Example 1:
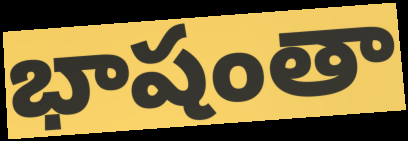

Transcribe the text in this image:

భాషంతా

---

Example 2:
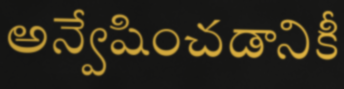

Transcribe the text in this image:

అన్వేషించడానికీ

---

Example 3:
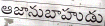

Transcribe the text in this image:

ఆజానుబాహుడు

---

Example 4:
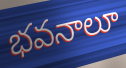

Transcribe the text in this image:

భవనాలూ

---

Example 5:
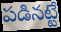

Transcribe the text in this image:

పడినట్టే